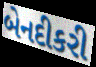
બેનદીકરી